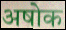
अषोक